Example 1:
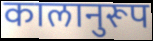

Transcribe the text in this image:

कालानुरूप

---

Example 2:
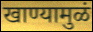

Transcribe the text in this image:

खाण्यामुळं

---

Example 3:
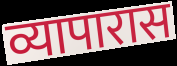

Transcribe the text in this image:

व्यापारास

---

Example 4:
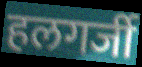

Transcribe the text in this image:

हलगर्जी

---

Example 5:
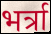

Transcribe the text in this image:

भर्त्रा